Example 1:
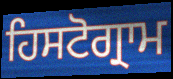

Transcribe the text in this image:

ਹਿਸਟੋਗ੍ਰਾਮ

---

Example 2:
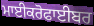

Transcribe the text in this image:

ਮਾਈਕਰੋਫਾਈਬਰ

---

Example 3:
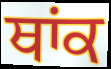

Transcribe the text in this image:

ਥਾਂਕ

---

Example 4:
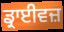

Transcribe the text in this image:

ਡ੍ਰਾਈਵਜ਼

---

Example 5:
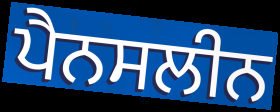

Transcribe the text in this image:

ਪੈਨਸਲੀਨ